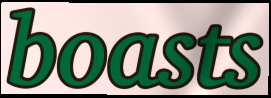
boasts